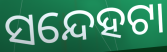
ସନ୍ଦେହଟା